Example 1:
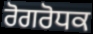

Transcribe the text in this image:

ਰੋਗਰੋਧਕ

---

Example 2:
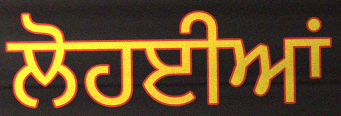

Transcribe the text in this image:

ਲੋਹਈਆਂ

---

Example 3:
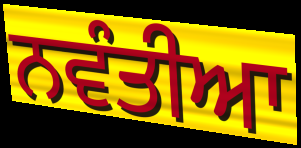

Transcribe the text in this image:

ਨਵੰਤੀਆ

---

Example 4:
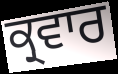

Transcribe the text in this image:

ਕ੍ਰਵਾਰ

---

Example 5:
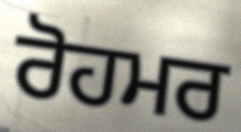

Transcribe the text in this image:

ਰੋਹਮਰ